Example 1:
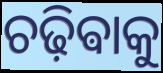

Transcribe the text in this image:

ଚଢ଼ିଵାକୁ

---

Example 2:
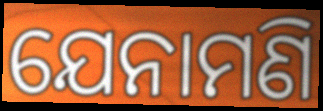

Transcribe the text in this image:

ଯେନାମଣି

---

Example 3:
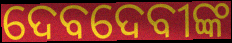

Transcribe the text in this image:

ଦେବଦେବୀଙ୍କ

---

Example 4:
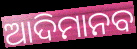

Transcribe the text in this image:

ଆଦିମାନବ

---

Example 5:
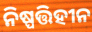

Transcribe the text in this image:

ନିଷ୍ପତ୍ତିହୀନ